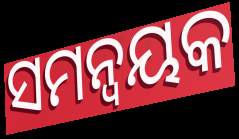
ସମନ୍ୱୟକ